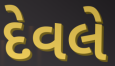
દેવલે